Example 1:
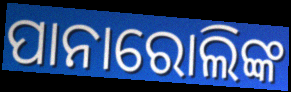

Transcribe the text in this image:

ପାନାରୋଲିଙ୍କ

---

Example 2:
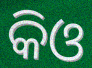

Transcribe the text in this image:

କିଓ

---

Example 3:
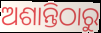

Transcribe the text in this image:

ଅଶାନ୍ତିଠାରୁ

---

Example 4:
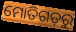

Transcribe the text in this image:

ମୋତିଗଡ଼ରୁ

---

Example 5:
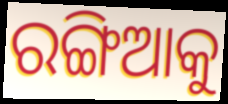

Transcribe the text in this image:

ରଙ୍ଗିଆକୁ